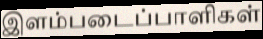
இளம்படைப்பாளிகள்